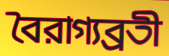
বৈরাগ্যব্রতী